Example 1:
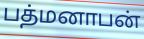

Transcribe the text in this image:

பத்மனாபன்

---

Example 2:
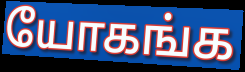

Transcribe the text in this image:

யோகங்க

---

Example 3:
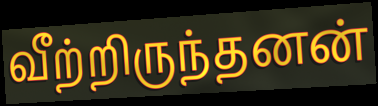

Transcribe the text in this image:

வீற்றிருந்தனன்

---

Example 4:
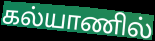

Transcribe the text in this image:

கல்யாணில்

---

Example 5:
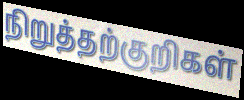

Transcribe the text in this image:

நிறுத்தற்குறிகள்